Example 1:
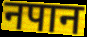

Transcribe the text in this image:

नपान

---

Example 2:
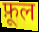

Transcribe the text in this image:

फ़ूल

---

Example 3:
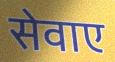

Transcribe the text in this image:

सेवाए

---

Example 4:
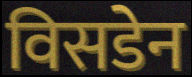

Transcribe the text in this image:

विसडेन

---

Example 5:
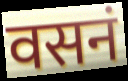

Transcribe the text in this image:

वसनं